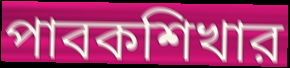
পাবকশিখার